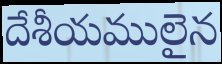
దేశీయములైన